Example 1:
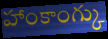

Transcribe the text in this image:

హాంకాంగ్కు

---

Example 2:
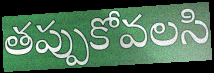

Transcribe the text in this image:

తప్పుకోవలసి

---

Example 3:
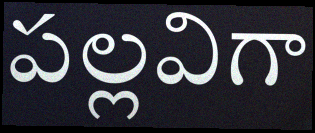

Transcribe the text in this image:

పల్లవిగా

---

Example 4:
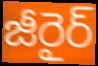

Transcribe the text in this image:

జీరైర్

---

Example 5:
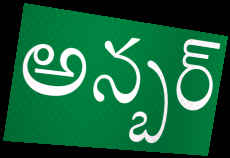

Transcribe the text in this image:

అన్బర్